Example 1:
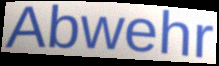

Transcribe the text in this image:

Abwehr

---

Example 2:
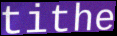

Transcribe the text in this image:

tithe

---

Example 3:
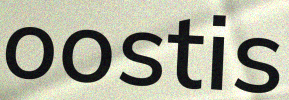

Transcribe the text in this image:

oostis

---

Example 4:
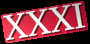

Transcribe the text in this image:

XXXI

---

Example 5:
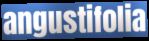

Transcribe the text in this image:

angustifolia